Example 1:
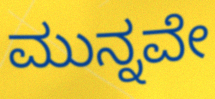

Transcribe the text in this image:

ಮುನ್ನವೇ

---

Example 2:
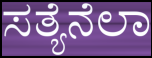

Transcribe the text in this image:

ಸತ್ಯೆನೆಲಾ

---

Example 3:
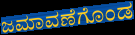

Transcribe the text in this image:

ಜಮಾವಣೆಗೊಂಡ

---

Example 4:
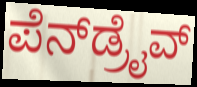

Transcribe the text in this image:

ಪೆನ್‌ಡ್ರೈವ್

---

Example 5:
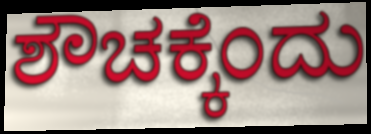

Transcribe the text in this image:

ಶೌಚಕ್ಕೆಂದು